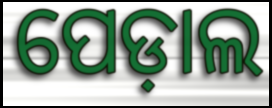
ପେଡ଼ାଲ